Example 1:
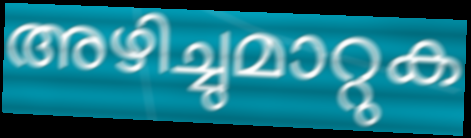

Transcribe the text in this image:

അഴിച്ചുമാറ്റുക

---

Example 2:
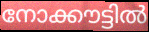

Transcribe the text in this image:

നോക്കൗട്ടിൽ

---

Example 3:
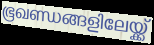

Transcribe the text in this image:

ഭൂഖണ്ഡങ്ങളിലേയ്ക്ക്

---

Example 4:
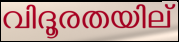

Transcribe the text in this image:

വിദൂരതയില്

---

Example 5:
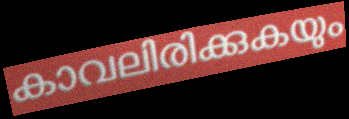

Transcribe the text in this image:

കാവലിരിക്കുകയും